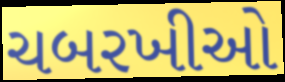
ચબરખીઓ